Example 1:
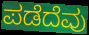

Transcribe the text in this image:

ಪಡೆದೆವು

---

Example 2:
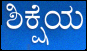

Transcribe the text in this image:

ಶಿಕ್ಷೆಯ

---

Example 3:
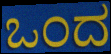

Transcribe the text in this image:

ಒಂದ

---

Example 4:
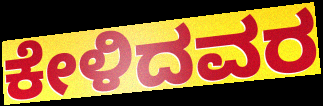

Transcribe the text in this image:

ಕೇಳಿದವರ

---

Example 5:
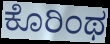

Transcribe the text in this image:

ಕೊರಿಂಥ